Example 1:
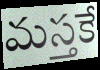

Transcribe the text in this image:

మస్తకే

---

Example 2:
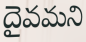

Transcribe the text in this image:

దైవమని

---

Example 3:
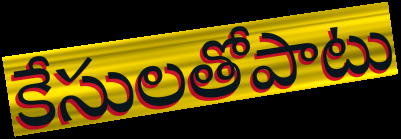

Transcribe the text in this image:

కేసులతోపాటు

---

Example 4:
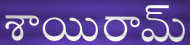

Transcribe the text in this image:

శాయిరామ్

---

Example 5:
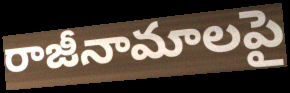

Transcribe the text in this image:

రాజీనామాలపై